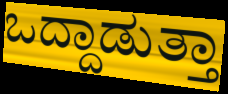
ಒದ್ದಾಡುತ್ತಾ